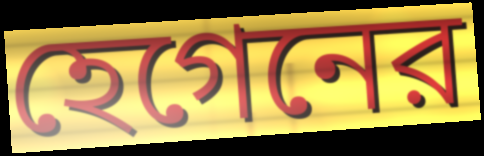
হেগেনের